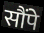
सौंपे